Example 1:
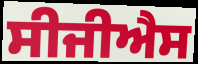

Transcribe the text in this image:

ਸੀਜੀਐਸ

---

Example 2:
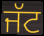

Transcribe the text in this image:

ਜੱਟ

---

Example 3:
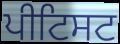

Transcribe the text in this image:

ਪੀਟਿਸਟ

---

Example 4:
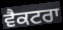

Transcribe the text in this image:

ਵੈਕਟਰਾ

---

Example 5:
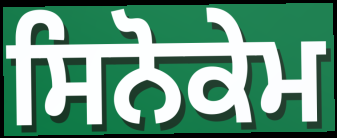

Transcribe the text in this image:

ਸਿਨੋਕੇਮ